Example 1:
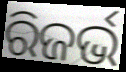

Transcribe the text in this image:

ରିଜର୍ଭ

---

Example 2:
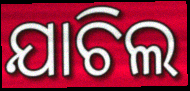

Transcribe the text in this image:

ଯାଚିଲ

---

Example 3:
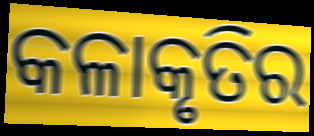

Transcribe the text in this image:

କଳାକୃତିର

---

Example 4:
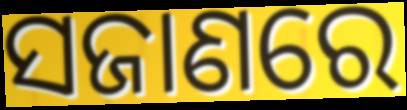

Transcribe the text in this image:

ସଜାଣରେ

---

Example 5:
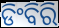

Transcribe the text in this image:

ଡିଂବିରି